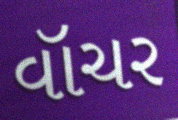
વૉચર